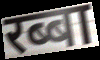
रब्बा